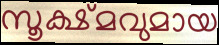
സൂക്ഷ്മവുമായ